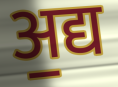
अ॒द्य